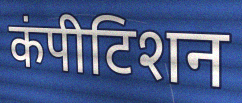
कंपीटिशन